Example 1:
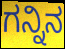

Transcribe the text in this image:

ಗನ್ನಿನ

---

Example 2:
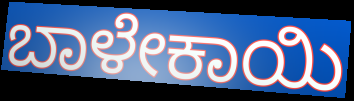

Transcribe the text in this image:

ಬಾಳೇಕಾಯಿ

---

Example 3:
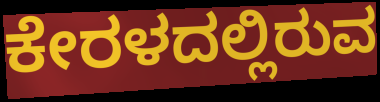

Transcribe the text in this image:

ಕೇರಳದಲ್ಲಿರುವ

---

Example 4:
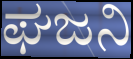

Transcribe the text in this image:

ಘಜನಿ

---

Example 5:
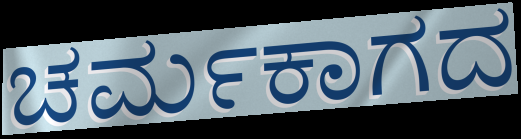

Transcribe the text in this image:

ಚರ್ಮಕಾಗದ